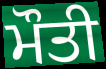
ਮੌਤੀ